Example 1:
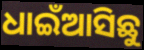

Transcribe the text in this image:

ଧାଇଁଆସିଛୁ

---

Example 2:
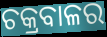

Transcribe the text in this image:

ଚକ୍ରବାଳର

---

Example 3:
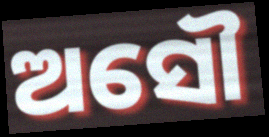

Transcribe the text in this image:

ଅସୌ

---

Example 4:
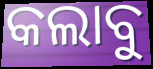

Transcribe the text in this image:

କଲାବୁ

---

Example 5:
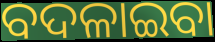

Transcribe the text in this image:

ବଦଳାଇବା